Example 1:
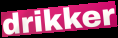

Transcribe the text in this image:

drikker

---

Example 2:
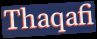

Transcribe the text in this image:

Thaqafi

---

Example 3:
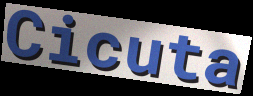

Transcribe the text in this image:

Cicuta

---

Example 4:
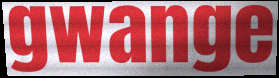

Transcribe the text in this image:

gwange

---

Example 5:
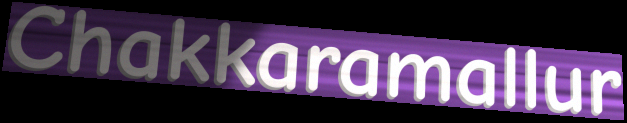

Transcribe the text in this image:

Chakkaramallur